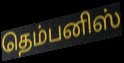
தெம்பனிஸ்